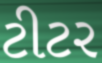
ટીટર